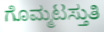
ಗೊಮ್ಮಟಸ್ತುತಿ